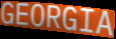
GEORGIA